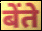
बेंते